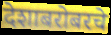
देशाबरोबरचे